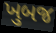
ખુબજ